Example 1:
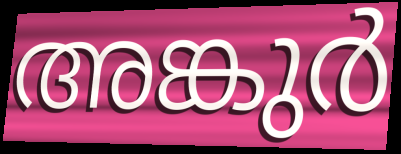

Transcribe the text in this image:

അങ്കുർ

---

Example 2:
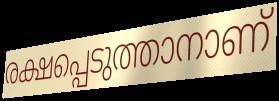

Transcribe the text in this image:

രക്ഷപ്പെടുത്താനാണ്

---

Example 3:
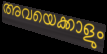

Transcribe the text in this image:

അവയെക്കാളും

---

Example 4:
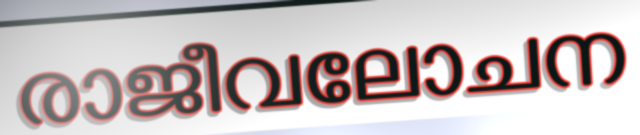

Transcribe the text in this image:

രാജീവലോചന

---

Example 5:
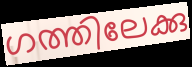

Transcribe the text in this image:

ഗത്തിലേക്കു